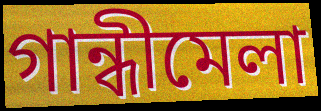
গান্ধীমেলা